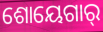
ଶୋୟେଗାର୍